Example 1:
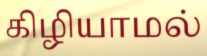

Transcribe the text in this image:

கிழியாமல்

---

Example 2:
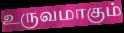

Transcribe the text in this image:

உருவமாகும்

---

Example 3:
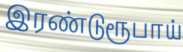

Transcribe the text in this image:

இரண்டுரூபாய்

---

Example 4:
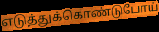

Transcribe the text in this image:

எடுத்துக்கொண்டுபோய்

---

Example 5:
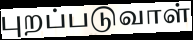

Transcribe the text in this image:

புறப்படுவாள்